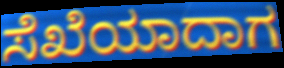
ಸೆಖೆಯಾದಾಗ